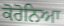
ਕੋਰੋਨਿਆ